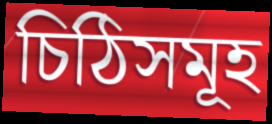
চিঠিসমূহ